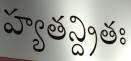
హ్యతన్ద్రితః